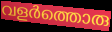
വളർത്തൊരു